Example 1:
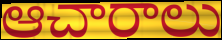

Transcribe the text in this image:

ఆచారాలు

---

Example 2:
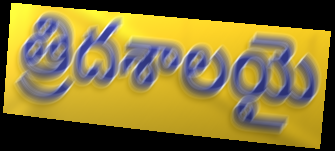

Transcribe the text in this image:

త్రిదశాలయై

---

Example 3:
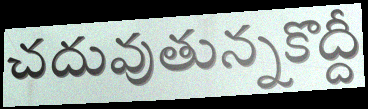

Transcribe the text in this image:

చదువుతున్నకొద్దీ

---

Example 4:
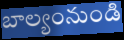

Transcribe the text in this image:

బాల్యంనుండి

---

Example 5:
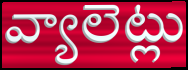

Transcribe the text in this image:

వ్యాలెట్లు